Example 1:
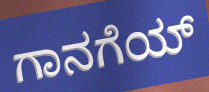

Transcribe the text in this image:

ಗಾನಗೆಯ್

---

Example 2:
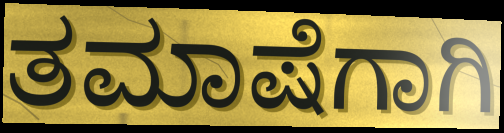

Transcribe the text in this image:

ತಮಾಷೆಗಾಗಿ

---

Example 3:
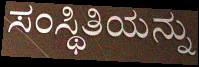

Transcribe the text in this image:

ಸಂಸ್ಥಿತಿಯನ್ನು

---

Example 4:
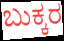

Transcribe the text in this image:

ಬುಕ್ಕರ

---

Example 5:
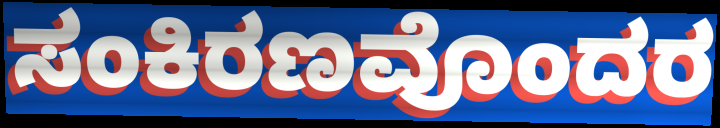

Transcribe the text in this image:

ಸಂಕಿರಣವೊಂದರ